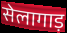
सेलागाड़